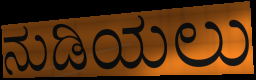
ನುಡಿಯಲು